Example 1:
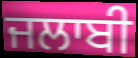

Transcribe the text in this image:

ਜਲਾਬੀ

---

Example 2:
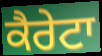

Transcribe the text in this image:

ਕੈਰੇਟਾ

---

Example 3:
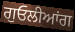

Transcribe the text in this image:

ਗੁਓਲੀਆਂਗ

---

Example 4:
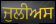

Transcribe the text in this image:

ਜੁਲੀਅਸ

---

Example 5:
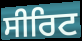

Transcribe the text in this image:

ਸੀਰਿਟ